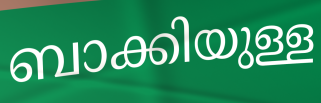
ബാക്കിയുള്ള